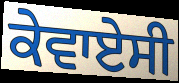
ਕੇਵਾਏਸੀ